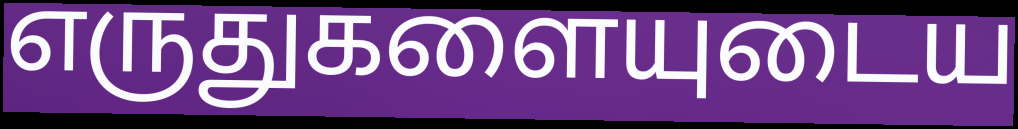
எருதுகளையுடைய